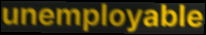
unemployable